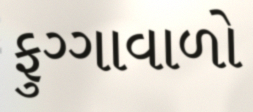
ફુગ્ગાવાળો